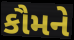
કૌમને